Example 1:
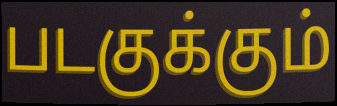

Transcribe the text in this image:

படகுக்கும்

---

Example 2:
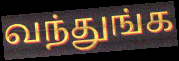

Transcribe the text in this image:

வந்துங்க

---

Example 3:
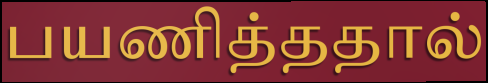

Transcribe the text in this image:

பயணித்ததால்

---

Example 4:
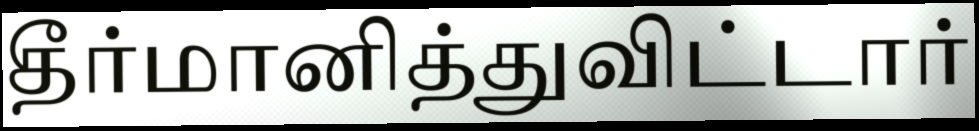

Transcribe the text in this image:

தீர்மானித்துவிட்டார்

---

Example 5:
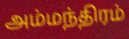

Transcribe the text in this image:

அம்மந்திரம்